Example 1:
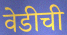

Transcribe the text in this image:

वेडीची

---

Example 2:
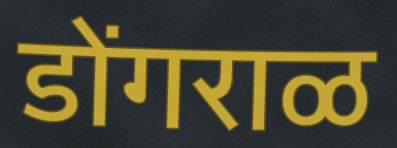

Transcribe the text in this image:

डोंगराळ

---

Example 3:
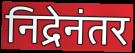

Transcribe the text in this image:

निद्रेनंतर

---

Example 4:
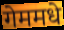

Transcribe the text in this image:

गेममधे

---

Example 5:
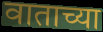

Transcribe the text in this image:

वाताच्या